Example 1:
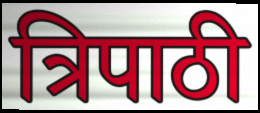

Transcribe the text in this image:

त्रिपाठी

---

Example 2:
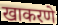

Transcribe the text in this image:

खाकरणे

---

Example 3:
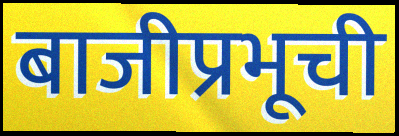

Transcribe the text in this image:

बाजीप्रभूची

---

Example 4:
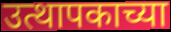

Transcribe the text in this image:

उत्थापकाच्या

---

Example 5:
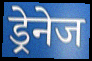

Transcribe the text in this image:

ड्रेनेज